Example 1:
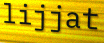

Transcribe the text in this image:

lijjat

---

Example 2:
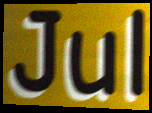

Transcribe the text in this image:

Jul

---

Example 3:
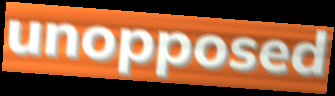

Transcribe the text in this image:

unopposed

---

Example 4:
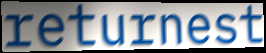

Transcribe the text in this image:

returnest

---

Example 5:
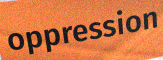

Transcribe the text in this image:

oppression